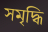
সমৃদ্ধি